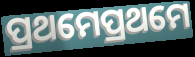
ପ୍ରଥମେପ୍ରଥମେ